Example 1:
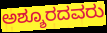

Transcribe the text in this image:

ಅಶ್ಶೂರದವರು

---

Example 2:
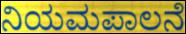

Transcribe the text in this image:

ನಿಯಮಪಾಲನೆ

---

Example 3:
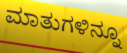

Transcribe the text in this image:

ಮಾತುಗಳಿನ್ನೂ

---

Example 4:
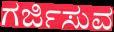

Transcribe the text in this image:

ಗರ್ಜಿಸುವ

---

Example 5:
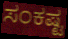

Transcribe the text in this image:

ಸಂಕಷ್ಟ